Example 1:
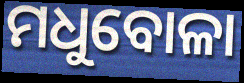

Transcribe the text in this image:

ମଧୁବୋଳା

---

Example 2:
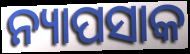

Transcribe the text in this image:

ନ୍ୟାପସାକ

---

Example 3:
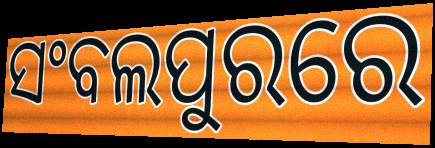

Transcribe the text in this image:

ସଂବଲପୁରରେ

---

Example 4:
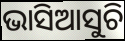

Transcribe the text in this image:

ଭାସିଆସୁଚି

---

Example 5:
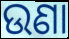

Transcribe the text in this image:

ଉଣା